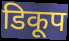
डिकूप